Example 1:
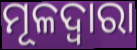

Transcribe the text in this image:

ମୂଳଦ୍ଵାରା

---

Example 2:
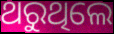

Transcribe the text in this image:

ଥରୁଥିଲେ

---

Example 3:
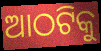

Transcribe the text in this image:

ଆଠଟିକୁ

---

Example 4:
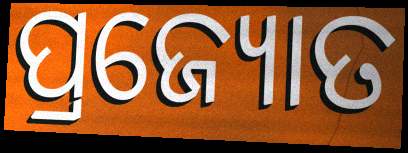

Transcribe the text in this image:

ପ୍ରଜ୍ୟୋତ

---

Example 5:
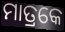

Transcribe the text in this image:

ମାତ୍ରକେ